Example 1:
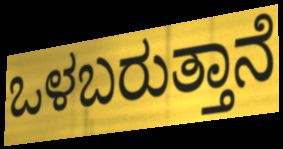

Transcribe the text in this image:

ಒಳಬರುತ್ತಾನೆ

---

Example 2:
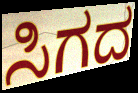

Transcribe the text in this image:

ಸಿಗದ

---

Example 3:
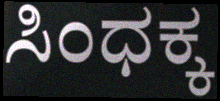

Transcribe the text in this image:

ಸಿಂಧಕ್ಕ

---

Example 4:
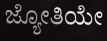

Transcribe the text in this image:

ಜ್ಯೋತಿಯೇ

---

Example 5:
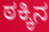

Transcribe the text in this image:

ಠಕ್ಕಿನ